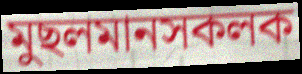
মুছলমানসকলক